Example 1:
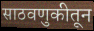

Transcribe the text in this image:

साठवणुकीतून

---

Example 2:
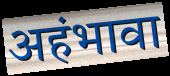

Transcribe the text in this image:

अहंभावा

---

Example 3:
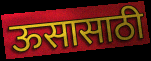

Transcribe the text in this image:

ऊसासाठी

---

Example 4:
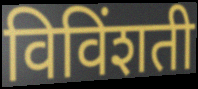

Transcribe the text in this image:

विविंशती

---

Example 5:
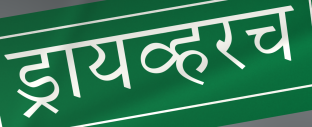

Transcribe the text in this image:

ड्रायव्हरच